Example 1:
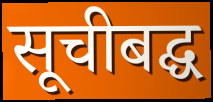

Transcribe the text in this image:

सूचीबद्घ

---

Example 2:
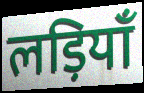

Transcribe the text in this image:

लड़ियाँ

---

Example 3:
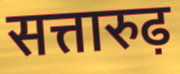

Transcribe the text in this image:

सत्तारुढ़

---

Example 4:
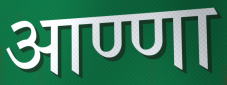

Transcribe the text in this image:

आण्णा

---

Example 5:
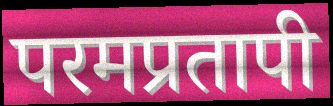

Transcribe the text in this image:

परमप्रतापी